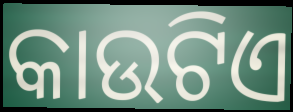
କାଉଟିଏ